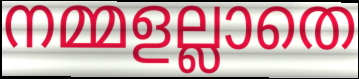
നമ്മളല്ലാതെ